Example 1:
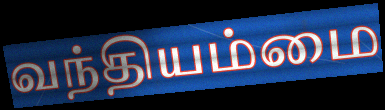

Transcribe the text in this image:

வந்தியம்மை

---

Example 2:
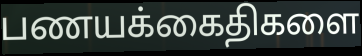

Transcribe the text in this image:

பணயக்கைதிகளை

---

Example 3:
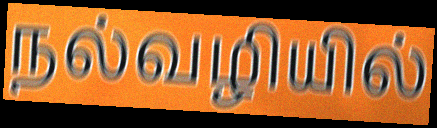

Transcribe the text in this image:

நல்வழியில்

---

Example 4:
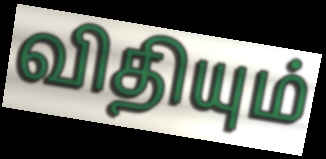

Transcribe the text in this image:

விதியும்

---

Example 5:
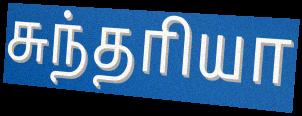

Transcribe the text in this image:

சுந்தரியா